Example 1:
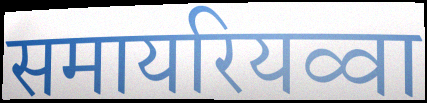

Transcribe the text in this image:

समायरियव्वा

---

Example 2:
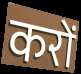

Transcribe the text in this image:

करों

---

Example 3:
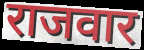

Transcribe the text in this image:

राजवार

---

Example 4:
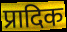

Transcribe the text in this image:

प्रादिक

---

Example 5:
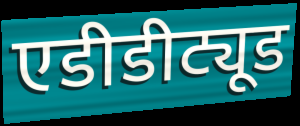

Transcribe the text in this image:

एडीडीट्यूड